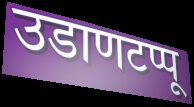
उडाणटप्पू